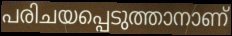
പരിചയപ്പെടുത്താനാണ്